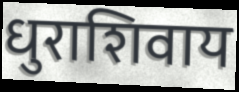
धुराशिवाय